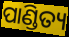
ପାଣ୍ଡିତ୍ୟ